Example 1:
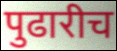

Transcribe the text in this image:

पुढारीच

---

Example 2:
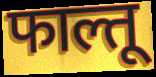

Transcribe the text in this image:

फाल्तू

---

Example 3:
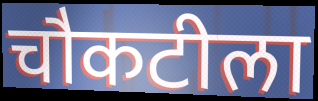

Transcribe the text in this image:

चौकटीला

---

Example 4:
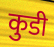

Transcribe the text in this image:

कुडी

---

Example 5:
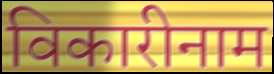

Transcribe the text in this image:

विकारीनाम